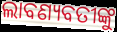
ଲାବଣ୍ୟବତୀଙ୍କୁ